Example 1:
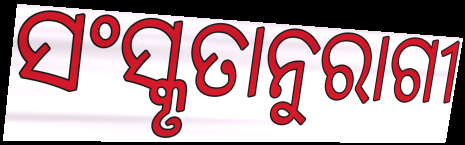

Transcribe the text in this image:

ସଂସ୍କୃତାନୁରାଗୀ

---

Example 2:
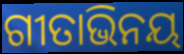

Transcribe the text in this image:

ଗୀତାଭିନୟ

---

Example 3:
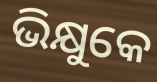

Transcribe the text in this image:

ଭିକ୍ଷୁକେ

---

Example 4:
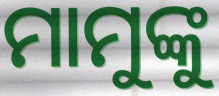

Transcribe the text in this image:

ମାମୁଙ୍କୁ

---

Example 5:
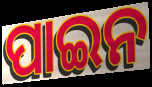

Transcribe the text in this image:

ପାଇନ